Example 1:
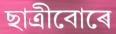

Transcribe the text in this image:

ছাত্ৰীবোৰে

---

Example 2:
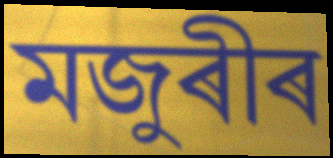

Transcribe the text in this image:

মজুৰীৰ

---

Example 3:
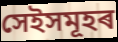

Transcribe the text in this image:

সেইসমূহৰ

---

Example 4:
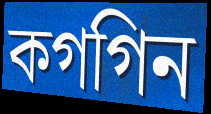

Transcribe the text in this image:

কগগিন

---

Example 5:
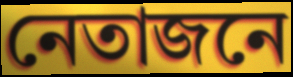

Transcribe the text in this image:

নেতাজনে